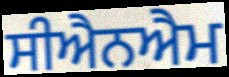
ਸੀਐਨਐਮ